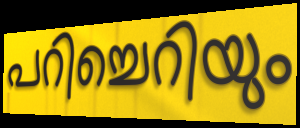
പറിച്ചെറിയും